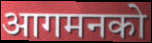
आगमनको